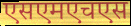
एसएमएचएस